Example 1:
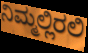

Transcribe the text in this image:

ನಿಮ್ಮಲ್ಲಿರಲಿ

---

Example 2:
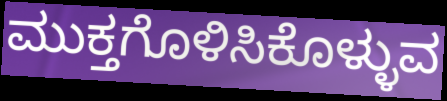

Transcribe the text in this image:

ಮುಕ್ತಗೊಳಿಸಿಕೊಳ್ಳುವ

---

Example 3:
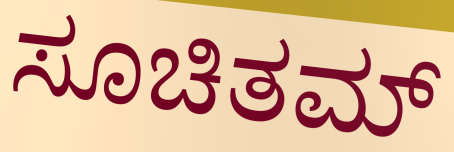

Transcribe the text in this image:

ಸೂಚಿತಮ್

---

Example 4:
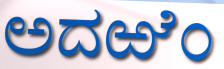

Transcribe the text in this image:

ಅದಱೆಂ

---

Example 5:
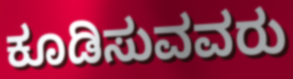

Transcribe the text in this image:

ಕೂಡಿಸುವವರು